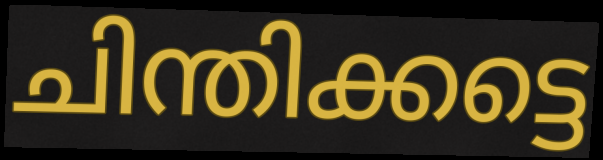
ചിന്തിക്കട്ടെ